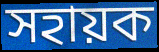
সহায়ক